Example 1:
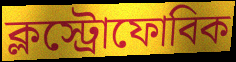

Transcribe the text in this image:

ক্লস্ট্রোফোবিক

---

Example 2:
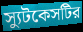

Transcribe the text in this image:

স্যুটকেসটির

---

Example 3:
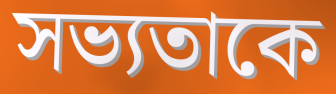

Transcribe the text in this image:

সভ্যতাকে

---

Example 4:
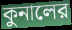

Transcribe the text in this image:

কুনালের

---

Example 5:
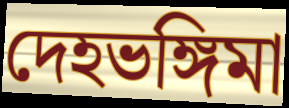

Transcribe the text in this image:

দেহভঙ্গিমা